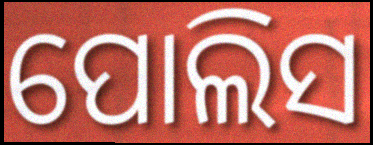
ପୋଲିସ